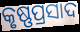
କୃଷ୍ଣପ୍ରସାଦ